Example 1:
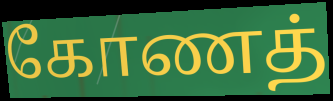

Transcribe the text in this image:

கோணத்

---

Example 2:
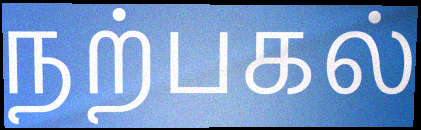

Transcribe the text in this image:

நற்பகல்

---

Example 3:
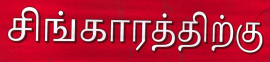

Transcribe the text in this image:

சிங்காரத்திற்கு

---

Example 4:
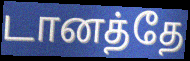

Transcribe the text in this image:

டானத்தே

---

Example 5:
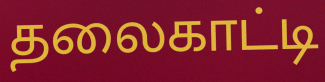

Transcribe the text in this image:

தலைகாட்டி